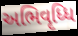
અભિવૃધ્ધિ